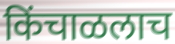
किंचाळलाच